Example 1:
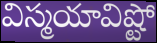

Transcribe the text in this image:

విస్మయావిష్టో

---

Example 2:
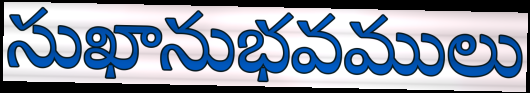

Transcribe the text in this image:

సుఖానుభవములు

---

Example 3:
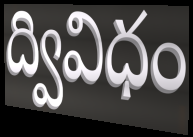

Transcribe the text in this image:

ద్వివిధం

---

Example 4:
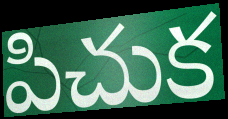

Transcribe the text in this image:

పిచుక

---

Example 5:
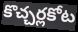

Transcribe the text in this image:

కొచ్చర్లకోట